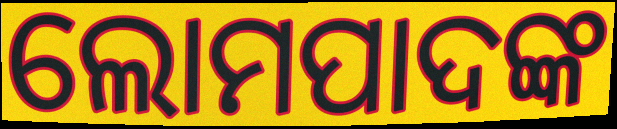
ଲୋମପାଦଙ୍କ